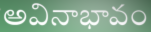
అవినాభావం